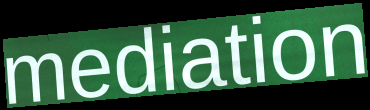
mediation